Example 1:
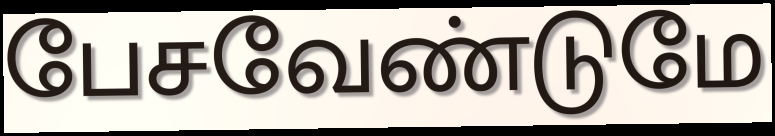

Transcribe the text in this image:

பேசவேண்டுமே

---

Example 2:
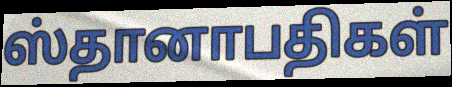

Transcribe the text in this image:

ஸ்தானாபதிகள்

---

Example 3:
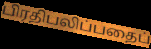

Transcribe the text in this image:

பிரதிபலிப்பதைப்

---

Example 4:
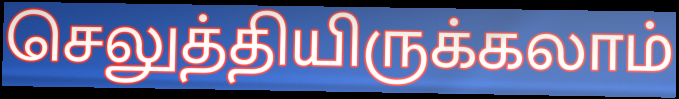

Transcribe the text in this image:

செலுத்தியிருக்கலாம்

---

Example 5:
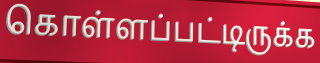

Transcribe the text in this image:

கொள்ளப்பட்டிருக்க